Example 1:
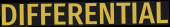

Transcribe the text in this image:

DIFFERENTIAL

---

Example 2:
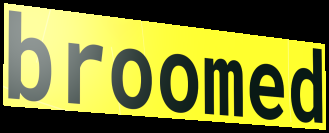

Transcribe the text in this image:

broomed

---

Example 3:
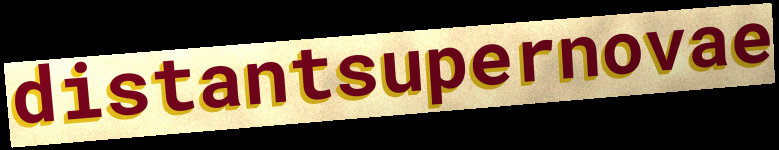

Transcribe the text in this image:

distantsupernovae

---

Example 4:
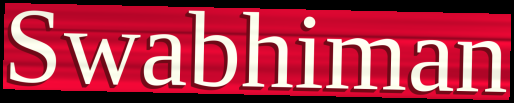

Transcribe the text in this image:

Swabhiman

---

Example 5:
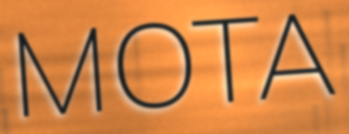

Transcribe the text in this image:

MOTA